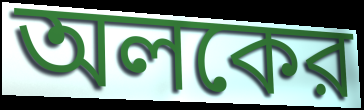
অলকের